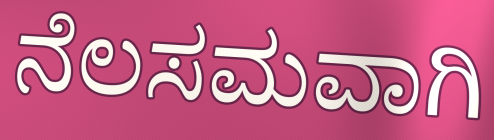
ನೆಲಸಮವಾಗಿ